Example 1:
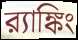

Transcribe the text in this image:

র‍্যাঙ্কিং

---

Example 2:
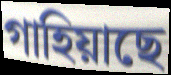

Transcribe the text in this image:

গাহিয়াছে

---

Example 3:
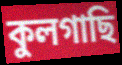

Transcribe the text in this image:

কুলগাছি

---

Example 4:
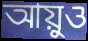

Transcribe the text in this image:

আয়ুও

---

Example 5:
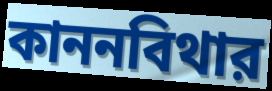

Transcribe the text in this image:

কাননবিথার